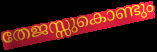
തേജസ്സുകൊണ്ടും